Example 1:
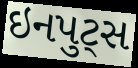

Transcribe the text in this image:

ઇનપુટ્સ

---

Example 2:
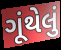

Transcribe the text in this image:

ગૂંથેલું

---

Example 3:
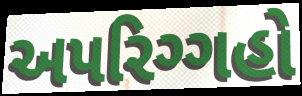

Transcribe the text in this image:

અપરિગ્ગહો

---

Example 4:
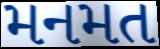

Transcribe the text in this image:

મનમત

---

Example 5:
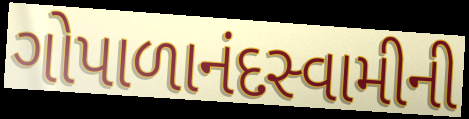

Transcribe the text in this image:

ગોપાળાનંદસ્વામીની